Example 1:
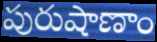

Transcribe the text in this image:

పురుషాణాం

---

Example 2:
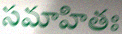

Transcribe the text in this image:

సమాహితః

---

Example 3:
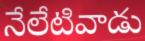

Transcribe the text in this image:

నేలేటివాడు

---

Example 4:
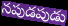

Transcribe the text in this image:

నపుడపుడు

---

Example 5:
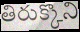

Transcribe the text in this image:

తిరుక్కొని